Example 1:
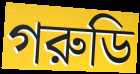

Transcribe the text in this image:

গরুডি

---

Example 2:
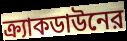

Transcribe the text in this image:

ক্র্যাকডাউনের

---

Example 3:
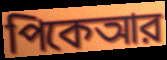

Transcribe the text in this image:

পিকেআর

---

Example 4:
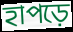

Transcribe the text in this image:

হাপড়ে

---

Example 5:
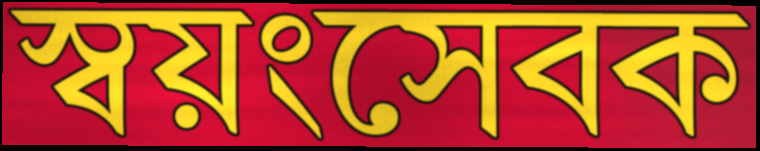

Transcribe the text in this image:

স্বয়ংসেবক